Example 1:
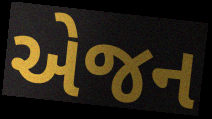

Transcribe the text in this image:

એજન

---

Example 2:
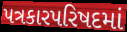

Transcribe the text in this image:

પત્રકારપરિષદમાં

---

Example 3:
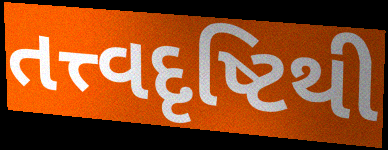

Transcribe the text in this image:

તત્ત્વદૃષ્ટિથી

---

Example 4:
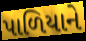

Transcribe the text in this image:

પાળિયાને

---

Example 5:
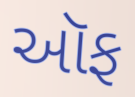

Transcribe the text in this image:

ઑફ